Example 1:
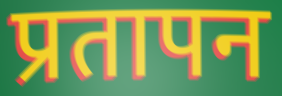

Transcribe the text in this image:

प्रतापन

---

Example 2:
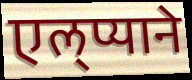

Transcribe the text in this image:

एल्प्याने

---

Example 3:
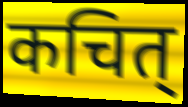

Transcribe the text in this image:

कचित्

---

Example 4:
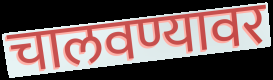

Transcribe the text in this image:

चालवण्यावर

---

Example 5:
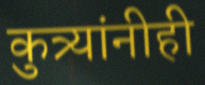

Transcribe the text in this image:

कुत्र्यांनीही